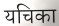
यचिका